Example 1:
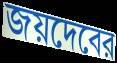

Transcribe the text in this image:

জয়দেবের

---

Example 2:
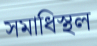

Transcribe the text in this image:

সমাধিস্থল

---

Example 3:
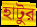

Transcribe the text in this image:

হাটুর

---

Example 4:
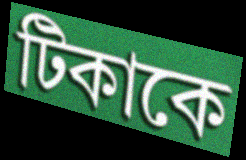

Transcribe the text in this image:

টিকাকে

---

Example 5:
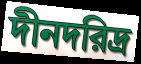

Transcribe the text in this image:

দীনদরিদ্র